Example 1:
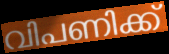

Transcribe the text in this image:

വിപണിക്ക്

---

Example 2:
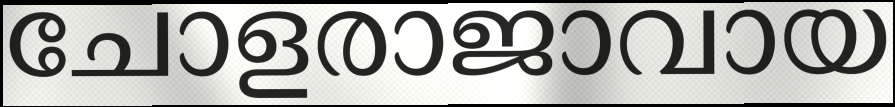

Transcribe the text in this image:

ചോളരാജാവായ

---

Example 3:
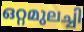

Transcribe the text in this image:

ഒറ്റമുലച്ചി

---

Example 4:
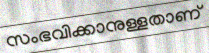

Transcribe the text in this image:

സംഭവിക്കാനുള്ളതാണ്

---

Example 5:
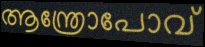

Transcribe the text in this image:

ആന്ത്രോപോവ്